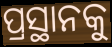
ପ୍ରସ୍ଥାନକୁ